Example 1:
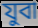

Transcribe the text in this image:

যুবা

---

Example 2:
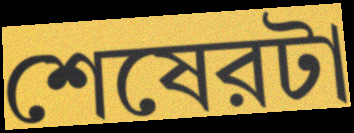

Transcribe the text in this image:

শেষেরটা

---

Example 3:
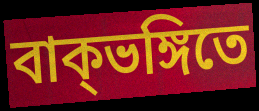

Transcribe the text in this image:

বাক্ভঙ্গিতে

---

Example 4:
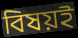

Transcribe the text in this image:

বিষয়ই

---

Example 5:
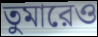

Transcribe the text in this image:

তুমারেও